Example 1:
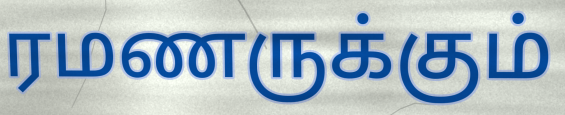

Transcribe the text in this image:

ரமணருக்கும்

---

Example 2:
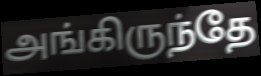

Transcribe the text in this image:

அங்கிருந்தே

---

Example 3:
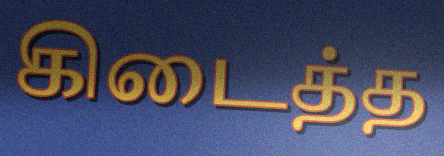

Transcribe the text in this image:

கிடைத்த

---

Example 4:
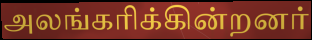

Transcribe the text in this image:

அலங்கரிக்கின்றனர்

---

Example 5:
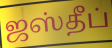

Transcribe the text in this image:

ஜஸ்தீப்